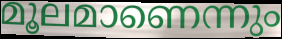
മൂലമാണെന്നും